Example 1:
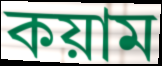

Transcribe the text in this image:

কয়াম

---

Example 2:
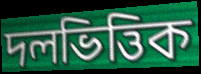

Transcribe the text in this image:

দলভিত্তিক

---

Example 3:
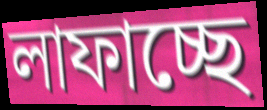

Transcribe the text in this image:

লাফাচ্ছে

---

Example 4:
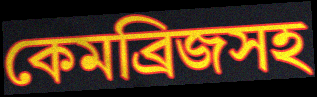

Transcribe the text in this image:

কেমব্রিজসহ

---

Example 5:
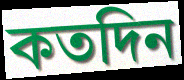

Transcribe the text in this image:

কতদিন